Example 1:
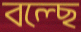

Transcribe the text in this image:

বল্ছে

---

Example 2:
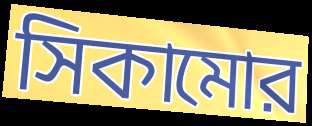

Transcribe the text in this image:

সিকামোর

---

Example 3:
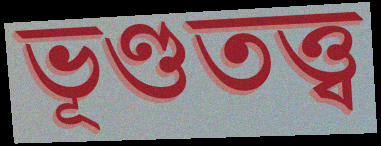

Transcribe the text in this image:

ভূণ্ডতত্ত্ব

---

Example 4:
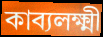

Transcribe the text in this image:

কাব্যলক্ষ্মী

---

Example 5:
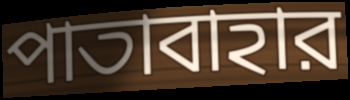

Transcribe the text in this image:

পাতাবাহার